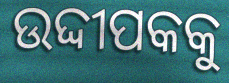
ଉଦ୍ଦୀପକକୁ